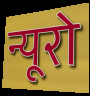
न्यूरो